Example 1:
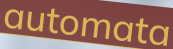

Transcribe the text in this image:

automata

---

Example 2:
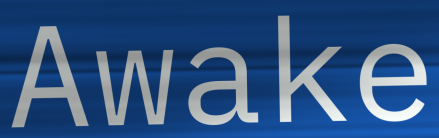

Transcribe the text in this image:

Awake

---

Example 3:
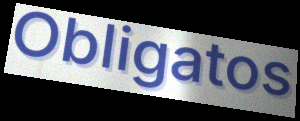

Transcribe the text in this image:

Obligatos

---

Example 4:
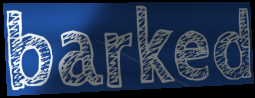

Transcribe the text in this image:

barked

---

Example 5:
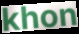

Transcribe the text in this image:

khon